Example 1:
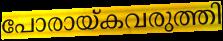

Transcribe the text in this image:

പോരായ്കവരുത്തി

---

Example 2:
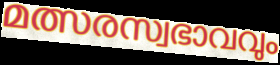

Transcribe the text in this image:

മത്സരസ്വഭാവവും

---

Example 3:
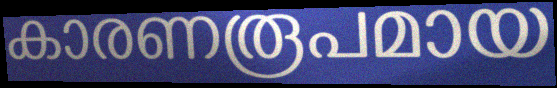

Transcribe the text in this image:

കാരണരൂപമായ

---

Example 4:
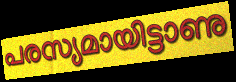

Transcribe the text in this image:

പരസ്യമായിട്ടാണു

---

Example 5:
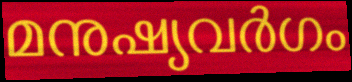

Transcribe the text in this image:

മനുഷ്യവർഗം